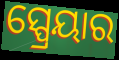
ସ୍ପ୍ରେୟାର